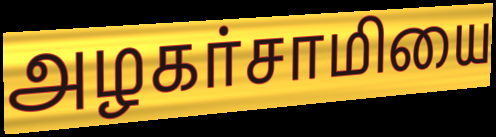
அழகர்சாமியை